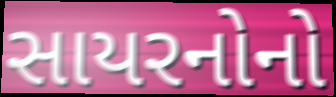
સાયરનોનો